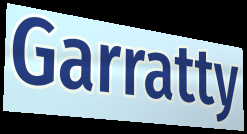
Garratty